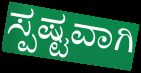
ಸ್ಪಷ್ಟವಾಗಿ